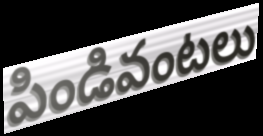
పిండివంటలు